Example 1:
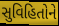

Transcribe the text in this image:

સુવિહિતોને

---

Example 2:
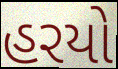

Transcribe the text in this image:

હરયો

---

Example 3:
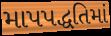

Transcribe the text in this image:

માપપદ્ધતિમાં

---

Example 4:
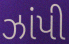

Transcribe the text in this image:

ઝાંપી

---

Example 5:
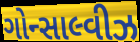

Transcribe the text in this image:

ગોન્સાલ્વીઝ